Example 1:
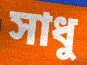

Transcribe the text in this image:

সাধু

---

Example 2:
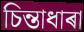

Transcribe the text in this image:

চিন্তাধাৰা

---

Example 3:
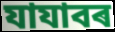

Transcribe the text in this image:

যাযাবৰ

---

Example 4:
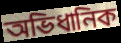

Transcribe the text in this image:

অভিধানিক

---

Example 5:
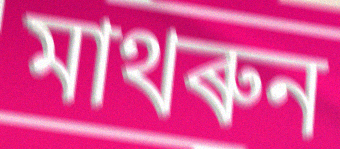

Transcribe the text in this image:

মাথৰুন